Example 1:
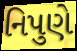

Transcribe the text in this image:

નિપુણે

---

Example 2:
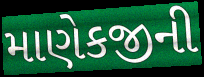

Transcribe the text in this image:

માણેકજીની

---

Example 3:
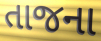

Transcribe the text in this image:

તાજના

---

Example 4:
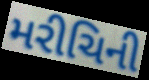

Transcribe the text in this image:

મરીચિની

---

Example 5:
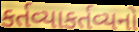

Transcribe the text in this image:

કર્તવ્યાકર્તવ્યનો